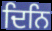
ਦਿਨਿ